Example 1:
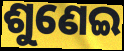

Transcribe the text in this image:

ଶୁଣେଇ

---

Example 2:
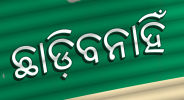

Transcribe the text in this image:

ଛାଡ଼ିବନାହିଁ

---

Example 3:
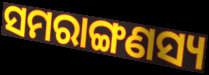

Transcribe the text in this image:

ସମରାଙ୍ଗଣସ୍ୟ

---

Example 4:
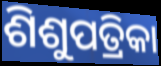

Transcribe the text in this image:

ଶିଶୁପତ୍ରିକା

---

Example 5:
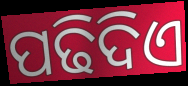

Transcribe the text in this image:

ପଢିଦିଏ